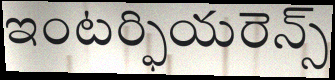
ఇంటర్ఫియరెన్స్